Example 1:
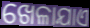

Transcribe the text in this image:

ଖେଳାଯାଏ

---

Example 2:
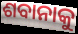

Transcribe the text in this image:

ଶବାନାକୁ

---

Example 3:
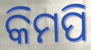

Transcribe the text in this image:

କିମପି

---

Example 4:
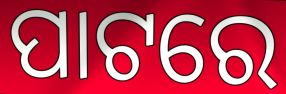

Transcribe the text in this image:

ପାଟରେ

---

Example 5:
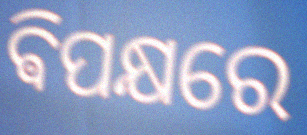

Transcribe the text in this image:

ଵିପକ୍ଷରେ